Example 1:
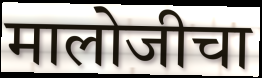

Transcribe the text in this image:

मालोजीचा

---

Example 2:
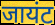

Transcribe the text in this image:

जायंट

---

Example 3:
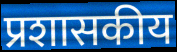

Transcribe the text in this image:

प्रशासकीय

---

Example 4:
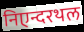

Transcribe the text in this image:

निएन्दरथल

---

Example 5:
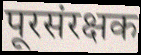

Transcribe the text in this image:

पूरसंरक्षक